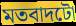
মতবাদটো